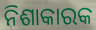
ନିଶାକାରକ